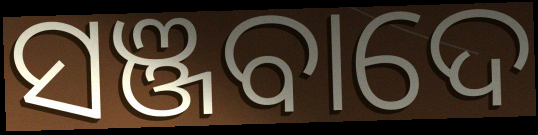
ସଞ୍ଜବାଦେ